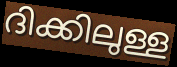
ദിക്കിലുള്ള